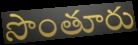
సొంతూరు